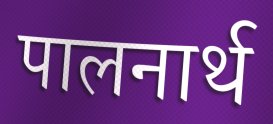
पालनार्थ